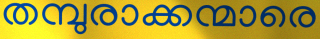
തമ്പുരാക്കന്മാരെ